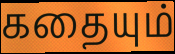
கதையும்